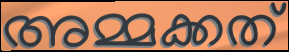
അമ്മക്കത്